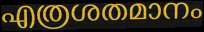
എത്രശതമാനം